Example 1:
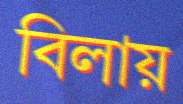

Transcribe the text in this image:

বিলায়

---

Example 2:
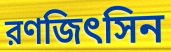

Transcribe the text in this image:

রণজিৎসিন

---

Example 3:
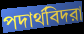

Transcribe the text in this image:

পদার্থবিদরা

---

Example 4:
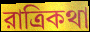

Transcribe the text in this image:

রাত্রিকথা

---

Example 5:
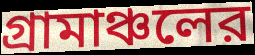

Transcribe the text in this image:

গ্রামাঞ্চলের